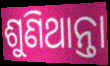
ଶୁଣିଥାନ୍ତା